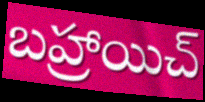
బహ్రాయిచ్